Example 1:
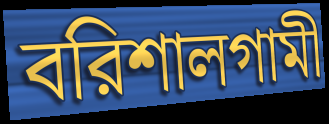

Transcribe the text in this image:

বরিশালগামী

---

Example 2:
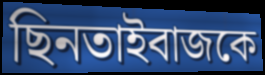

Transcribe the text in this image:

ছিনতাইবাজকে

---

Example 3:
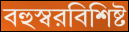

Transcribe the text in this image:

বহুস্বরবিশিষ্ট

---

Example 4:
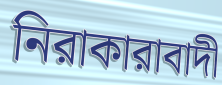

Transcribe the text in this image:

নিরাকারাবাদী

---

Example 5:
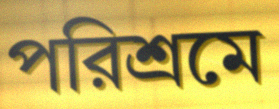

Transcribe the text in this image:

পরিশ্রমে